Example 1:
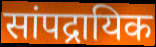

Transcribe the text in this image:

सांपद्रायिक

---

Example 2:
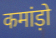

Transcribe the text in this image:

कमांड़ो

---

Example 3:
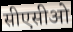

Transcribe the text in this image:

सीएसीओ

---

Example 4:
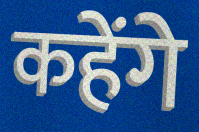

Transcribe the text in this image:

कहेंगे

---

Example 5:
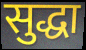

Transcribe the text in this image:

सुद्धा